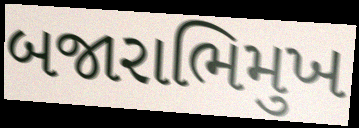
બજારાભિમુખ